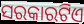
ସରକାରଟିଏ